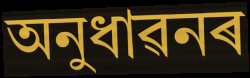
অনুধাৱনৰ